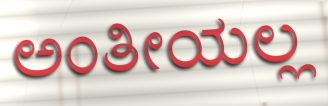
ಅಂತೀಯಲ್ಲ